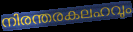
നിരന്തരകലഹവും